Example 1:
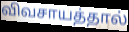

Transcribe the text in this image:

விவசாயத்தால்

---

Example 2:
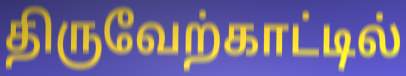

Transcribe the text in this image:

திருவேற்காட்டில்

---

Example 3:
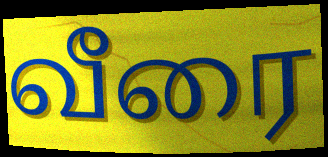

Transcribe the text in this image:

வீரை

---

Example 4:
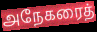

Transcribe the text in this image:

அநேகரைத்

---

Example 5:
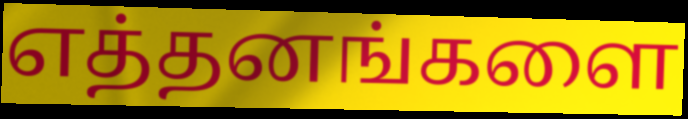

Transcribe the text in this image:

எத்தனங்களை